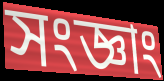
সংজ্ঞাং